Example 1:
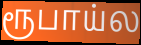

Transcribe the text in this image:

ரூபாய்ல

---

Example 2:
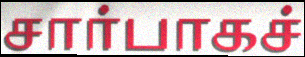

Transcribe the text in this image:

சார்பாகச்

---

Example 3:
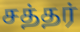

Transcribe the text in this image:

சத்தர்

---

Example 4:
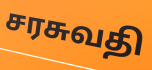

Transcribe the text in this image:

சரசுவதி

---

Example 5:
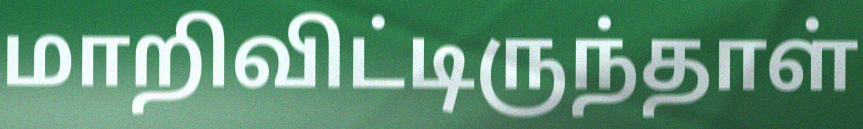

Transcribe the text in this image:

மாறிவிட்டிருந்தாள்